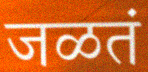
जळतं